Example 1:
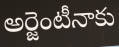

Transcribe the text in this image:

అర్జెంటీనాకు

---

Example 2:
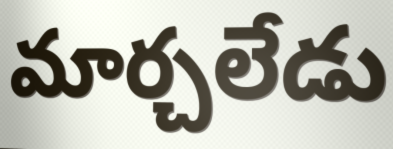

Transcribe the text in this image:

మార్చలేడు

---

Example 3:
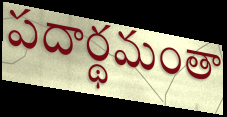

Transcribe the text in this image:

పదార్థమంతా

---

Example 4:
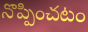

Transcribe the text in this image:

నొప్పించటం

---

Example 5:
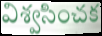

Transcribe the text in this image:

విశ్వసించక